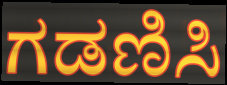
ಗಡಣಿಸಿ